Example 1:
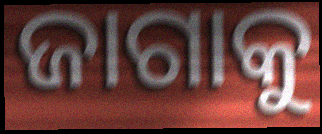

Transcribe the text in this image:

ଜାଗାକୁ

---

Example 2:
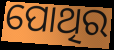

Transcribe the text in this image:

ପୋଥିର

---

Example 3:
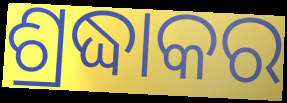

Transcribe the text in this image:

ଶ୍ରଦ୍ଧାକର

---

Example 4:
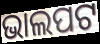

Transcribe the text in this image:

ଭାଲପଟ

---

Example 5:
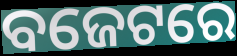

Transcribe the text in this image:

ବଜେଟରେ